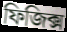
ফিজিক্স